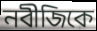
নবীজিকে